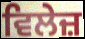
ਵਿਲੇਜ਼